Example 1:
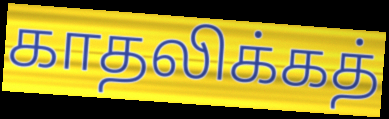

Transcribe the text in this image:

காதலிக்கத்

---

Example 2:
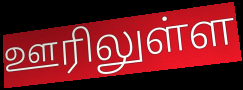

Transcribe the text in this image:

ஊரிலுள்ள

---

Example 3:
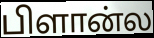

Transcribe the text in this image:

பிளான்ல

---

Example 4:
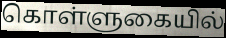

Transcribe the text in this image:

கொள்ளுகையில்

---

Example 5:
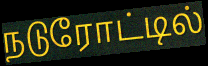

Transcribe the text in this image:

நடுரோட்டில்